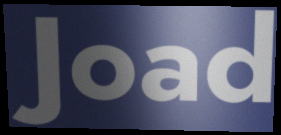
Joad